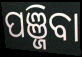
ପଞ୍ଜିବା